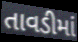
તાવડીમાં